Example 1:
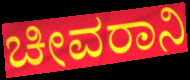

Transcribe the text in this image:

ಚೀವರಾನಿ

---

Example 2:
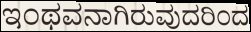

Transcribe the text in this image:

ಇಂಥವನಾಗಿರುವುದರಿಂದ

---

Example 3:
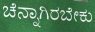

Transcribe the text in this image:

ಚೆನ್ನಾಗಿರಬೇಕು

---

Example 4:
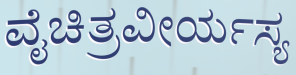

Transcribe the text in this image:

ವೈಚಿತ್ರವೀರ್ಯಸ್ಯ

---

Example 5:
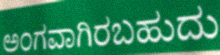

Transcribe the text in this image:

ಅಂಗವಾಗಿರಬಹುದು